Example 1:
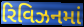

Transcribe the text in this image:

રિવિઝનમાં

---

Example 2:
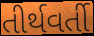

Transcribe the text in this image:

તીર્થવર્તી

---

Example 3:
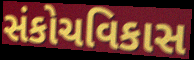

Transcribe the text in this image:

સંકોચવિકાસ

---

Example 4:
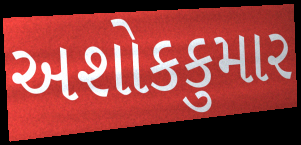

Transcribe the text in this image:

અશોકકુમાર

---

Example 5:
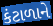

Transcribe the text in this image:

કંટાળાને